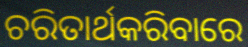
ଚରିତାର୍ଥକରିବାରେ